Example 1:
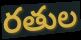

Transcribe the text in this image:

రతుల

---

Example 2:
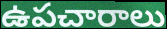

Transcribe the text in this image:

ఉపచారాలు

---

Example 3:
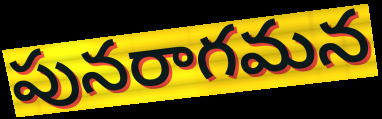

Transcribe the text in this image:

పునరాగమన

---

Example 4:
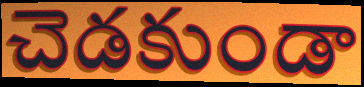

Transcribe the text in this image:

చెడకుండా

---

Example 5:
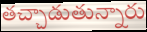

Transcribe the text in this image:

తచ్చాడుతున్నారు